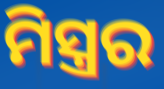
ମିସ୍ତ୍ରର